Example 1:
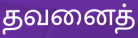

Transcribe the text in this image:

தவனைத்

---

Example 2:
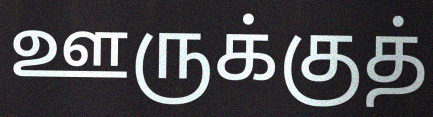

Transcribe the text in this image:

ஊருக்குத்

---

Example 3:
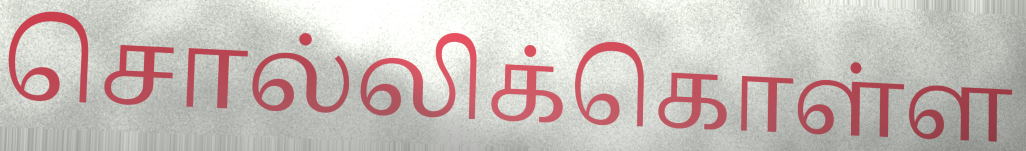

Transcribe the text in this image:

சொல்லிக்கொள்ள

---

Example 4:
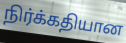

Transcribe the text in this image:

நிர்க்கதியான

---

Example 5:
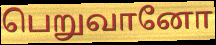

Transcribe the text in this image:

பெறுவானோ